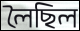
লৈছিল